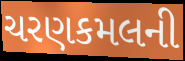
ચરણકમલની